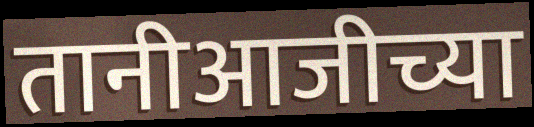
तानीआजीच्या